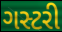
ગસ્ટરી